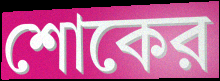
শোকের